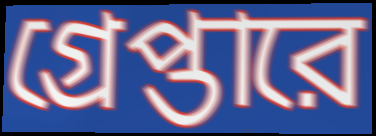
গ্রেপ্তারে